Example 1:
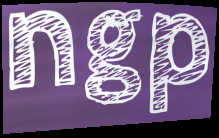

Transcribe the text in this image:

ngp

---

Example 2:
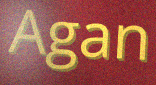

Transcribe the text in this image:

Agan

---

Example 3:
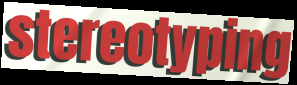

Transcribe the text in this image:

stereotyping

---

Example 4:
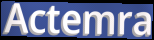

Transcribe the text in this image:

Actemra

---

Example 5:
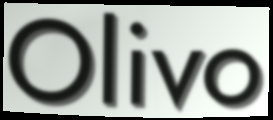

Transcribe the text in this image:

Olivo